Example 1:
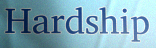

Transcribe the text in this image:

Hardship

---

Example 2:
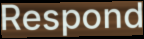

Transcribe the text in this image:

Respond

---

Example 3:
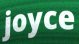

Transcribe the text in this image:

joyce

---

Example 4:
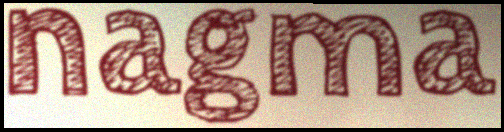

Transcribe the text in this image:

nagma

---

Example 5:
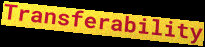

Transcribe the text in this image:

Transferability